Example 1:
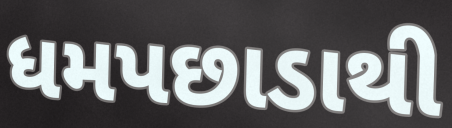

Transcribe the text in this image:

ધમપછાડાથી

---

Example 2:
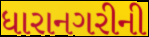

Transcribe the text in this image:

ધારાનગરીની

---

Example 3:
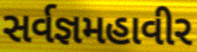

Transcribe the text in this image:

સર્વજ્ઞમહાવીર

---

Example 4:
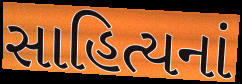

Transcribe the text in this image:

સાહિત્યનાં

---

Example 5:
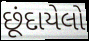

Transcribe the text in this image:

છૂંદાયેલો